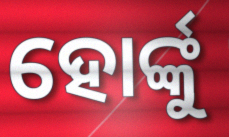
ହୋର୍ଙ୍କୁ